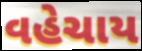
વહેચાય